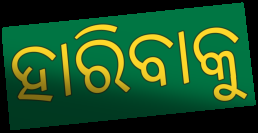
ହାରିବାକୁ